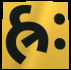
હ્રઃ